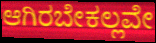
ಆಗಿರಬೇಕಲ್ಲವೇ